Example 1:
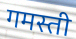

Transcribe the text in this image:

गमस्ती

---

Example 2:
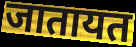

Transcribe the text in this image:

जातायत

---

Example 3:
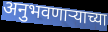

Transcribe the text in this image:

अनुभवणार्‍याच्या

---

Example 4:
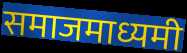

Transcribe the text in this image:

समाजमाध्यमी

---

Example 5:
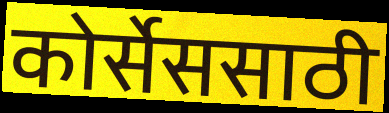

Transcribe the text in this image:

कोर्सेससाठी